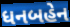
ધનબહેન